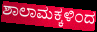
ಶಾಲಾಮಕ್ಕಳಿಂದ